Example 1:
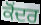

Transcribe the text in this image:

ਕੋਂਦਰ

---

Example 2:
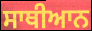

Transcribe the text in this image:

ਸਾਥੀਆਨ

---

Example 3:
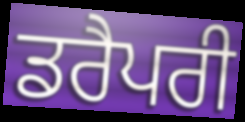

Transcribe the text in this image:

ਡਰੈਪਰੀ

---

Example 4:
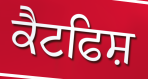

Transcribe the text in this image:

ਕੈਟਫਿਸ਼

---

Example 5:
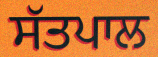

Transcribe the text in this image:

ਸੱਤਪਾਲ